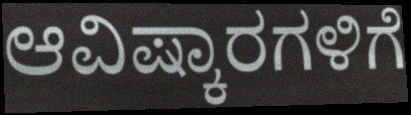
ಆವಿಷ್ಕಾರಗಳಿಗೆ